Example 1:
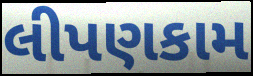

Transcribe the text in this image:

લીપણકામ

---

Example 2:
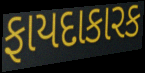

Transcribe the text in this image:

ફાયદાકારક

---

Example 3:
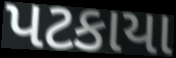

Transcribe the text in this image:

પટકાયા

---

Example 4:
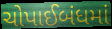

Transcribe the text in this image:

ચોપાઈબંધમાં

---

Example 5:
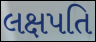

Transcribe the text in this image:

લક્ષપતિ